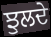
ਝੁਲਦੇ